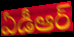
ఏడీఆర్